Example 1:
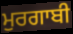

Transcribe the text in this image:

ਮੁਰਗਾਬੀ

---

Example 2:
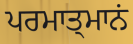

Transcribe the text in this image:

ਪਰਮਾਤ੍ਮਾਨਂ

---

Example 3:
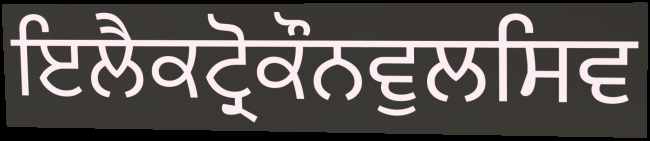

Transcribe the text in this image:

ਇਲੈਕਟ੍ਰੋਕੌਨਵੁਲਸਿਵ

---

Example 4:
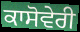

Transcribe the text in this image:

ਕਾਸੋਵੇਰੀ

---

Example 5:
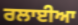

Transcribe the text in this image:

ਰਲਾਈਆ